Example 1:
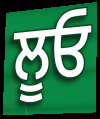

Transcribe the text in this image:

ਲੂਓ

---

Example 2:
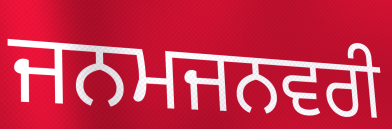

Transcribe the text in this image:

ਜਨਮਜਨਵਰੀ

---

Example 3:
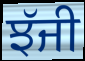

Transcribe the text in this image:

ਝੱਜੀ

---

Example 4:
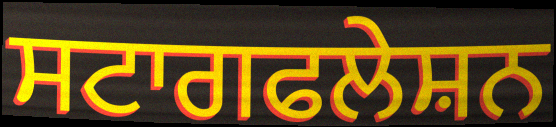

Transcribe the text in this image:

ਸਟਾਗਫਲੇਸ਼ਨ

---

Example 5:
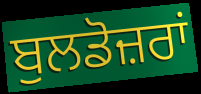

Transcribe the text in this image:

ਬੁਲਡੋਜ਼ਰਾਂ